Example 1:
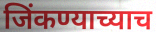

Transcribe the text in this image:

जिंकण्याच्याच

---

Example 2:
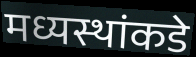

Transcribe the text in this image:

मध्यस्थांकडे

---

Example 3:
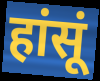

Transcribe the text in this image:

हांसूं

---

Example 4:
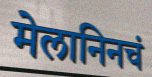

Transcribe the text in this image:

मेलानिनचं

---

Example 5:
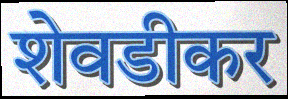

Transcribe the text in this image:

शेवडीकर